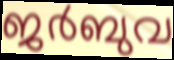
ജർബുവ